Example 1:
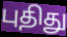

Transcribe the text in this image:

புதிது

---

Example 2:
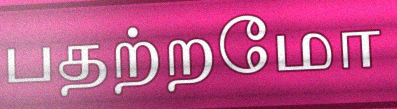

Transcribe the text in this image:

பதற்றமோ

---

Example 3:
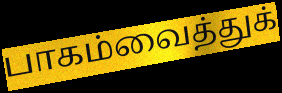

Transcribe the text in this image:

பாகம்வைத்துக்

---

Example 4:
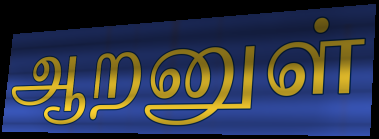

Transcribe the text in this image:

ஆறனுள்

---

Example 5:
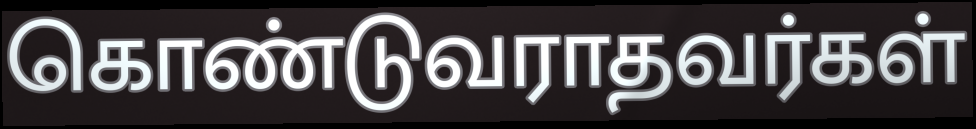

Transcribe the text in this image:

கொண்டுவராதவர்கள்